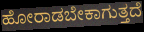
ಹೋರಾಡಬೇಕಾಗುತ್ತದೆ